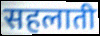
सहलाती